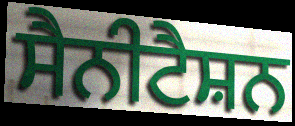
ਸੈਨੀਟੈਸ਼ਨ